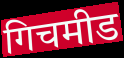
गिचमीड